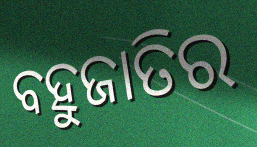
ବହୁଜାତିର